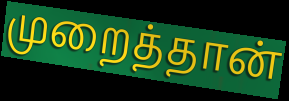
முறைத்தான்